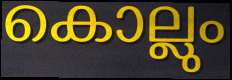
കൊല്ലും